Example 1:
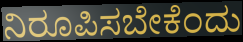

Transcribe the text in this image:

ನಿರೂಪಿಸಬೇಕೆಂದು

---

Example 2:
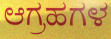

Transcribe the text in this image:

ಆಗ್ರಹಗಳ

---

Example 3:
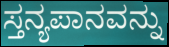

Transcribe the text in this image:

ಸ್ತನ್ಯಪಾನವನ್ನು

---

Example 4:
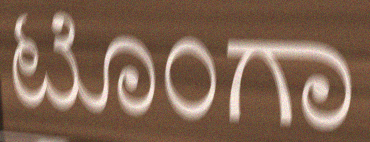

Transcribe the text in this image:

ಟೊಂಗಾ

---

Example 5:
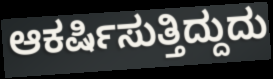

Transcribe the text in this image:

ಆಕರ್ಷಿಸುತ್ತಿದ್ದುದು